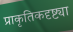
प्राकृतिकदृष्ट्या